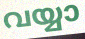
വയ്യാ